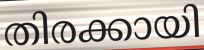
തിരക്കായി